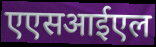
एएसआईएल